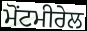
ਮੋਂਟਮੀਰੇਲ